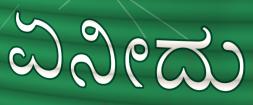
ಏನೀದು